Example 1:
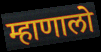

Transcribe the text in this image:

म्हाणालो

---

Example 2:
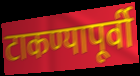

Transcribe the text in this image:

टाकण्यापूर्वी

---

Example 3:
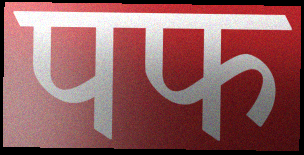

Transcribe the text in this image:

पफ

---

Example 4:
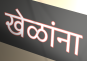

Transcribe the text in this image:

खेळांना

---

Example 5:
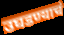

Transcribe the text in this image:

उघडण्याचं